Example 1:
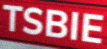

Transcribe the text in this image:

TSBIE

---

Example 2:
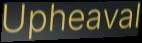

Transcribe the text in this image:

Upheaval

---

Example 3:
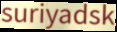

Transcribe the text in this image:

suriyadsk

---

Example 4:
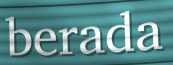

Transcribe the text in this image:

berada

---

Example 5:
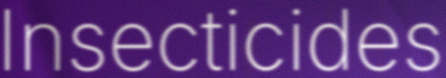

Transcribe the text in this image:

Insecticides